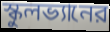
স্কুলভ্যানের